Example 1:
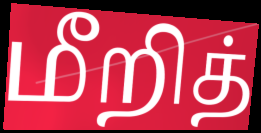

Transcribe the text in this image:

மீறித்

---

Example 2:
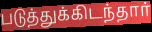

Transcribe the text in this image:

படுத்துக்கிடந்தார்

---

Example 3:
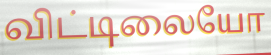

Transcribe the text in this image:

விட்டிலையோ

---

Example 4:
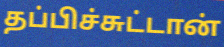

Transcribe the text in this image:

தப்பிச்சுட்டான்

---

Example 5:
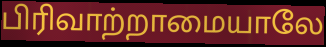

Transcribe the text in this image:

பிரிவாற்றாமையாலே